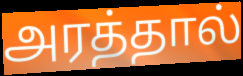
அரத்தால்